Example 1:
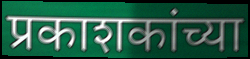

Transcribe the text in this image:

प्रकाशकांच्या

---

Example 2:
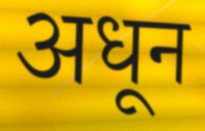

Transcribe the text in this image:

अधून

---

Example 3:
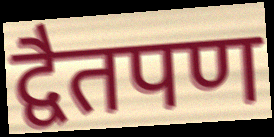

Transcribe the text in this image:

द्वैतपण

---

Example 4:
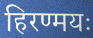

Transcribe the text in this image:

हिरण्मयः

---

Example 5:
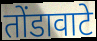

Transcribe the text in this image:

तोंडावाटे